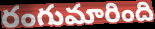
రంగుమారింది